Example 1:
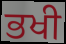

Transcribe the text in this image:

ਭਖੀ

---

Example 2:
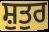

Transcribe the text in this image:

ਸ਼ੁਤੁਰ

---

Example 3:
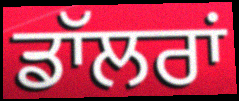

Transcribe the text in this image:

ਡਾੱਲਰਾਂ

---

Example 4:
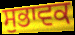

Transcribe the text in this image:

ਸੁਭਾਵਕ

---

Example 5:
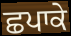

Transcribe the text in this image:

ਛਪਾਕੇ